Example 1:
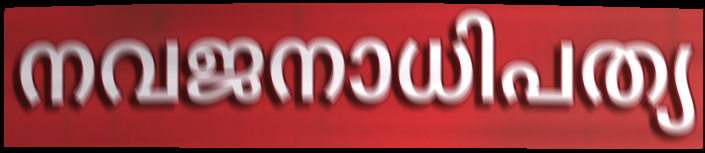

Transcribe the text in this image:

നവജനാധിപത്യ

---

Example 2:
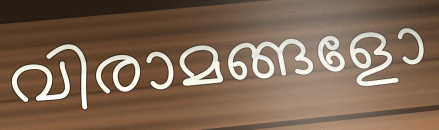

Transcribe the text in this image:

വിരാമങ്ങളോ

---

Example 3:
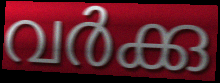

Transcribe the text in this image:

വർക്കു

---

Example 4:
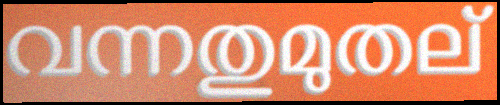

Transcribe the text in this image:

വന്നതുമുതല്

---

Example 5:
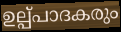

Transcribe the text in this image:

ഉല്പ്പാദകരും